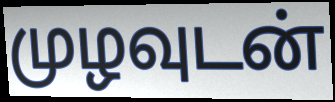
முழவுடன்